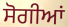
ਸੋਗੀਆਂ